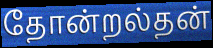
தோன்றல்தன்